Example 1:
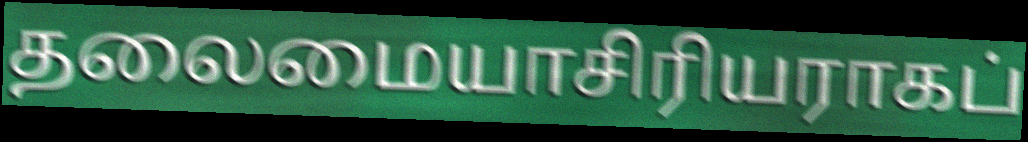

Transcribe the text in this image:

தலைமையாசிரியராகப்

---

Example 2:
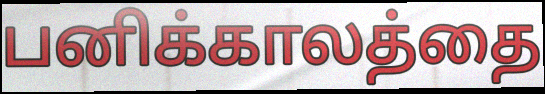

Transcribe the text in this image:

பனிக்காலத்தை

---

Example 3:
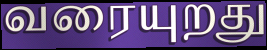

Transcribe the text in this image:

வரையுறது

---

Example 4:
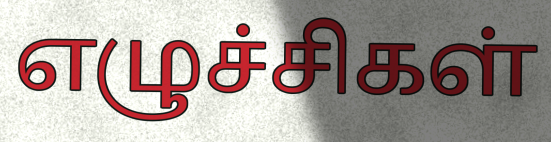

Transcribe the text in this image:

எழுச்சிகள்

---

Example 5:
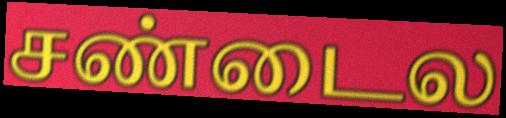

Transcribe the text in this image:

சண்டைல